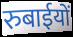
रुबाईयों